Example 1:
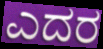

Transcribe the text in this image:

ಎದರ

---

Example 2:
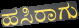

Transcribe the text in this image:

ಹಸಿರಾಗು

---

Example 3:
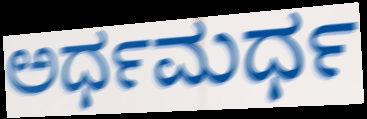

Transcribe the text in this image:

ಅರ್ಧಮರ್ಧ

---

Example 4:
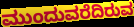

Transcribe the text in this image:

ಮುಂದುವರೆದಿರುವ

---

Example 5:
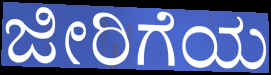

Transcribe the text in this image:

ಜೀರಿಗೆಯ